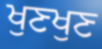
ਖੁਣਖੁਣ